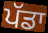
ਪੱਡਾ